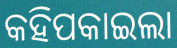
କହିପକାଇଲା